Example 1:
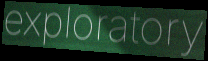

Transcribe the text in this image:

exploratory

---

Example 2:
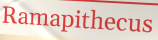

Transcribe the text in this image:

Ramapithecus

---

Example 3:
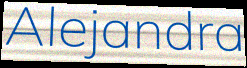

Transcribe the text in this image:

Alejandra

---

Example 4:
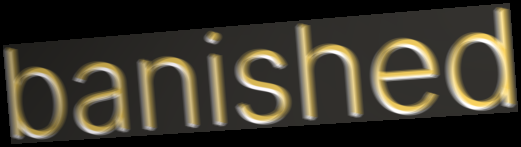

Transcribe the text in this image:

banished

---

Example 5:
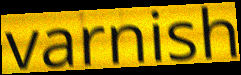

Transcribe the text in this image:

varnish